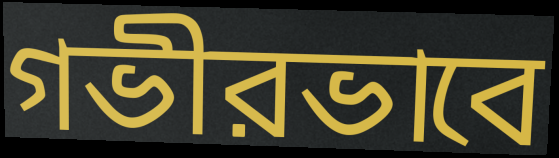
গভীরভাবে